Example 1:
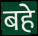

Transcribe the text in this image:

बहे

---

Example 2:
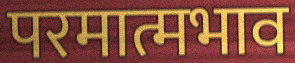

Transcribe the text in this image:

परमात्मभाव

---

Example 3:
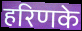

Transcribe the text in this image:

हरिणके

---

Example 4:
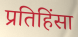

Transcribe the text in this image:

प्रतिहिंसा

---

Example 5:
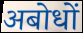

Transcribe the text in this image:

अबोधों